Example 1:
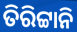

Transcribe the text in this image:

ତିରିଟ୍ଟାନି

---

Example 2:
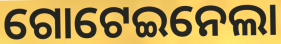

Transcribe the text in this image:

ଗୋଟେଇନେଲା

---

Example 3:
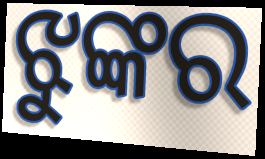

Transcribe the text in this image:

ଝୁଙ୍କର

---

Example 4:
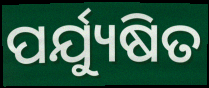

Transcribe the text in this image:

ପର୍ଯ୍ୟୁଷିତ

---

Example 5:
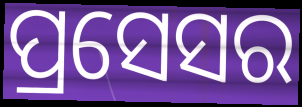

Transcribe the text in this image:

ପ୍ରସେସର